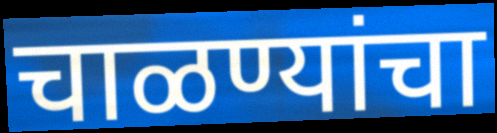
चाळण्यांचा